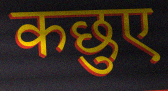
कछुए